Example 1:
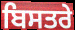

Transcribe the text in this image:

ਬਿਸਤਰੇ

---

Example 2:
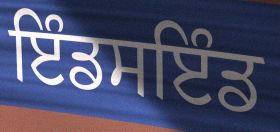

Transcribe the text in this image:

ਇੰਡਸਇੰਡ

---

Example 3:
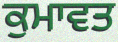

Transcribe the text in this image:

ਕੁਮਾਵਤ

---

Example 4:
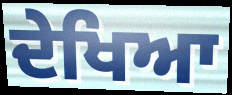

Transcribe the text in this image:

ਦੇਖਿਆ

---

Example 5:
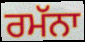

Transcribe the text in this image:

ਰਮੱਨਾ